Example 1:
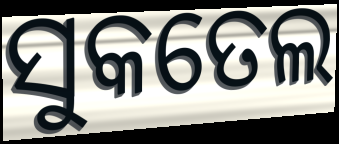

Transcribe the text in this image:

ସୁକତେଲ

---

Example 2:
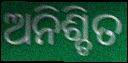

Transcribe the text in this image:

ଅନିଶ୍ଚିତ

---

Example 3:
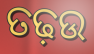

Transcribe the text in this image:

ତଢ଼ଉ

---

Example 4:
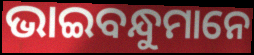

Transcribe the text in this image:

ଭାଇବନ୍ଧୁମାନେ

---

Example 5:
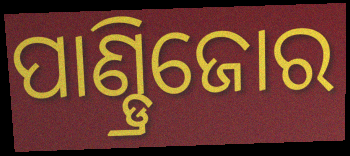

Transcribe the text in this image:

ପାଣ୍ଡ୍ରିଜୋର